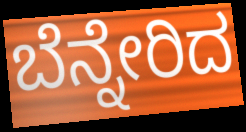
ಬೆನ್ನೇರಿದ